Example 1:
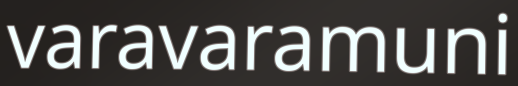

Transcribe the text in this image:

varavaramuni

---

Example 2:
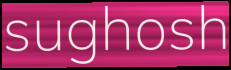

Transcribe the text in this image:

sughosh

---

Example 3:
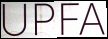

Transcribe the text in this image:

UPFA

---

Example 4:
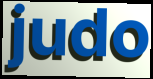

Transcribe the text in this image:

judo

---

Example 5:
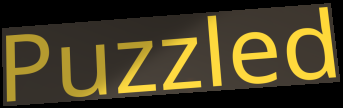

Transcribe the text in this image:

Puzzled